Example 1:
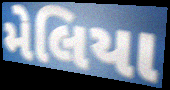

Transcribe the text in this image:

મેલિયા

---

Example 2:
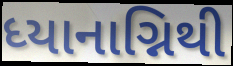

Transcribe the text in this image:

ધ્યાનાગ્નિથી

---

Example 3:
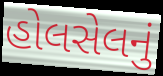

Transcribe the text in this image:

હોલસેલનું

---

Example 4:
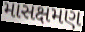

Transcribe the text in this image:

માસક્ષમણ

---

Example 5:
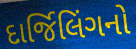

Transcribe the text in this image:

દાર્જિલિંગનો